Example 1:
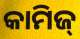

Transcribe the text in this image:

କାମିଜ୍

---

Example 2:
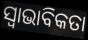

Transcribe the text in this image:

ସ୍ବାଭାବିକତା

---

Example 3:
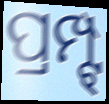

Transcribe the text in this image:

ପ୍ରମ୍ପ୍ଟ୍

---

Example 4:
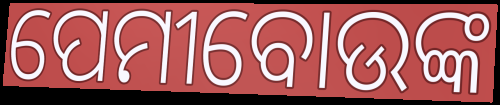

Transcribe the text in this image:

ପେମୀବୋଉଙ୍କ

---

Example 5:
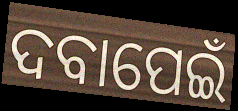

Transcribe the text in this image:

ଦବାପେଇଁ